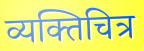
व्यक्तिचित्र